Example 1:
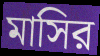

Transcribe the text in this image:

মাসির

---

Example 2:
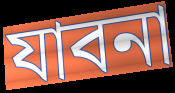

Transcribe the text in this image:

যাবনা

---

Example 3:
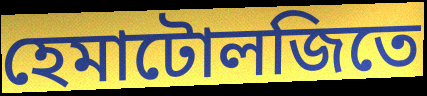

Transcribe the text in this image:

হেমাটোলজিতে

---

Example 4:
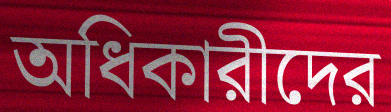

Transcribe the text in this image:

অধিকারীদের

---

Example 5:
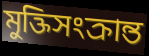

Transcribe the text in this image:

মুক্তিসংক্রান্ত